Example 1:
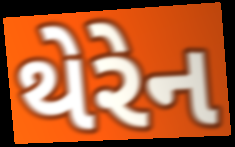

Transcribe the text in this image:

થેરેન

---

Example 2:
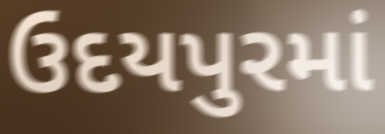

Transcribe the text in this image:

ઉદયપુરમાં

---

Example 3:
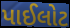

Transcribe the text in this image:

પાઈલોટ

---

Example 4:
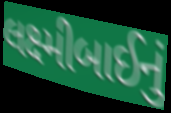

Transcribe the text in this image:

લક્ષ્મીબાઈનું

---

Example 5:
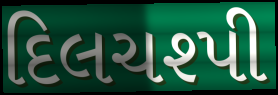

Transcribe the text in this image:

દિલચશ્પી